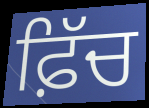
ਫ਼ਿੱਚ